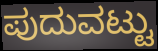
ಪುದುವಟ್ಟು